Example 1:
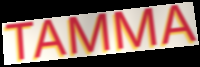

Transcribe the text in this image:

TAMMA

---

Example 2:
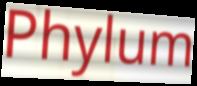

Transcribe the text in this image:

Phylum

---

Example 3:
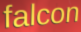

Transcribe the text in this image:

falcon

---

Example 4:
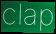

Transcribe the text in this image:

clap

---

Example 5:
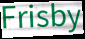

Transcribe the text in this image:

Frisby